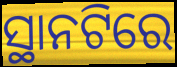
ସ୍ଥାନଟିରେ